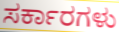
ಸರ್ಕಾರಗಳು